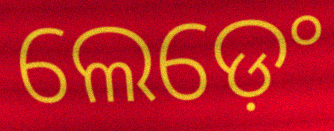
ଲେଡ଼େଂ